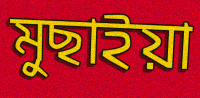
মুছাইয়া